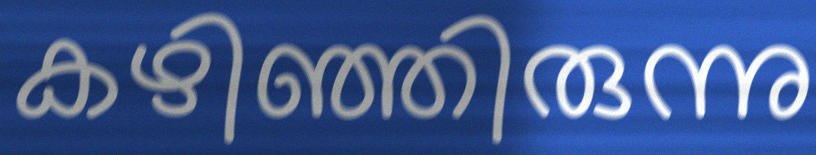
കഴിഞ്ഞിരുന്നു